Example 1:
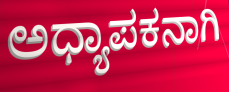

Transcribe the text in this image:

ಅಧ್ಯಾಪಕನಾಗಿ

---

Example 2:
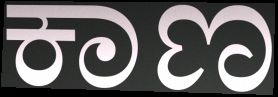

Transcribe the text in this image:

ಕಾಣ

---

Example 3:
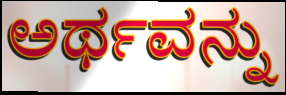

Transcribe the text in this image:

ಅರ್ಥವನ್ನು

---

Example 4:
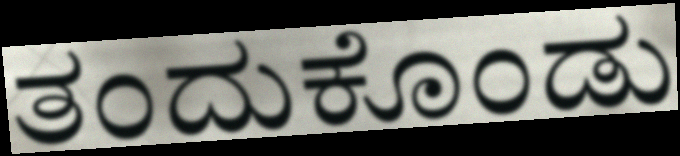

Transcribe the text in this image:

ತಂದುಕೊಂಡು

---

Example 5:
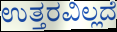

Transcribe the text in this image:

ಉತ್ತರವಿಲ್ಲದೆ